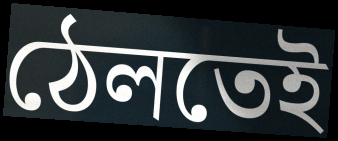
ঠেলতেই